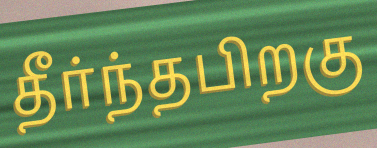
தீர்ந்தபிறகு